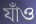
যাঁও